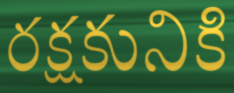
రక్షకునికి